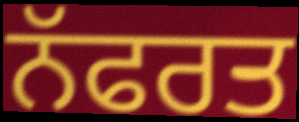
ਨੱਫਰਤ